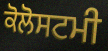
ਕੋਲੋਸਟਮੀ